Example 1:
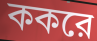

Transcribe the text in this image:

ককরে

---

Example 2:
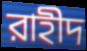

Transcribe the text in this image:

রাহীদ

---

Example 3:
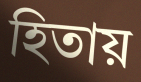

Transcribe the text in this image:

হিতায়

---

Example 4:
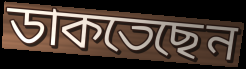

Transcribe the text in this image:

ডাকতেছেন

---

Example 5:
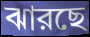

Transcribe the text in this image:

ঝারছে